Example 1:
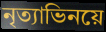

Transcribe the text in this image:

নৃত্যাভিনয়ে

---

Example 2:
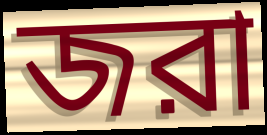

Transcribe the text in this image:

জরা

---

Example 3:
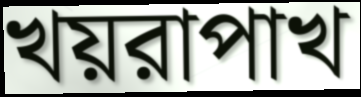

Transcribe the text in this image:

খয়রাপাখ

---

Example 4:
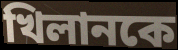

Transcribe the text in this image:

খিলানকে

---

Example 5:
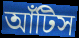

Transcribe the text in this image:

আঁটিস